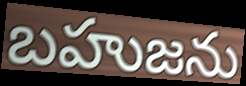
బహుజను